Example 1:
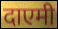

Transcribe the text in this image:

दाएमी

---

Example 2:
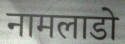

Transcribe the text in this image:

नामलाडो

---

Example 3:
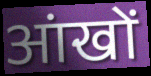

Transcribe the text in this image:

आंखों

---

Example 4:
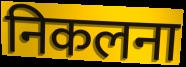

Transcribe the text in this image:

निकलना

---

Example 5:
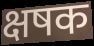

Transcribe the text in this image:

क्षषक